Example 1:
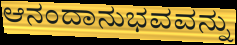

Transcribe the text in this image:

ಆನಂದಾನುಭವವನ್ನು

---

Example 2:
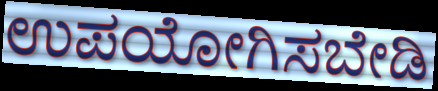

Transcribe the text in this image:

ಉಪಯೋಗಿಸಬೇಡಿ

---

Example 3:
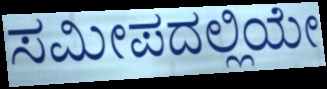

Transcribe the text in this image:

ಸಮೀಪದಲ್ಲಿಯೇ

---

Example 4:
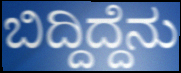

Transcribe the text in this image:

ಬಿದ್ದಿದ್ದೆನು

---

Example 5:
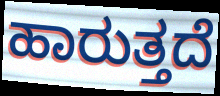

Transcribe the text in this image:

ಹಾರುತ್ತದೆ